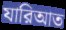
যারিআত